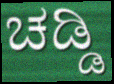
ಚಡ್ಡಿ